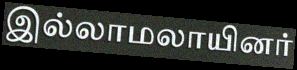
இல்லாமலாயினர்